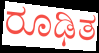
ರೂಢಿತ